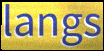
langs